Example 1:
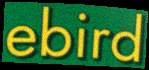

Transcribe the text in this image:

ebird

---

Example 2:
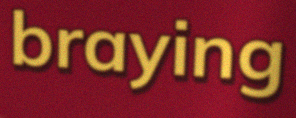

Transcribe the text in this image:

braying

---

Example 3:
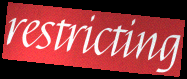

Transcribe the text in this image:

restricting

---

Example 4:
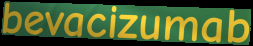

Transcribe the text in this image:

bevacizumab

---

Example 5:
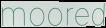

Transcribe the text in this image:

moored